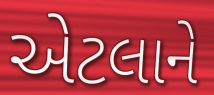
એટલાને